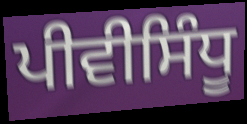
ਪੀਵੀਸਿੰਧੂ